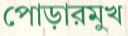
পোড়ারমুখ